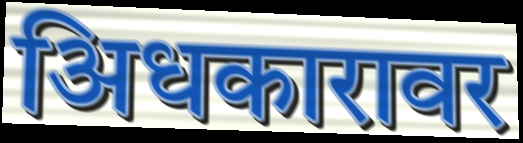
अिधकारावर